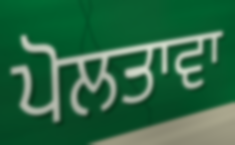
ਪੋਲਤਾਵਾ